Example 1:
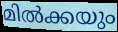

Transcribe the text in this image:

മിൽക്കയും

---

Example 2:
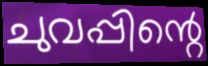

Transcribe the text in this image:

ചുവപ്പിന്റെ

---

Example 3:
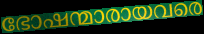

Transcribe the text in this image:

ഭോഷന്മാരായവരെ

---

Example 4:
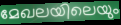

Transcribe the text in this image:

മേഖലയിലെയും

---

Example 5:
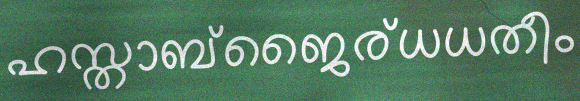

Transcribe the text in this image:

ഹസ്താബ്ജൈര്ധധതീം